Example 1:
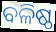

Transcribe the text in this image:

ବଳିଷ୍ଠ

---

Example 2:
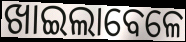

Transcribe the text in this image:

ଖାଇଲାବେଳେ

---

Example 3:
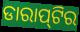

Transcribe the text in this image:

ଡାରାପ୍‌ଟିର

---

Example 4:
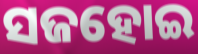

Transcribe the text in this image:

ସଜହୋଇ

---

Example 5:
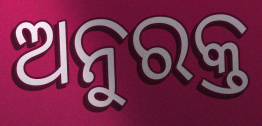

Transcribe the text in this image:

ଅନୁରକ୍ତ